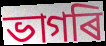
ভাগৰি